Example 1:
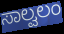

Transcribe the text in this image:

ಸಾಲ್ವಲಂ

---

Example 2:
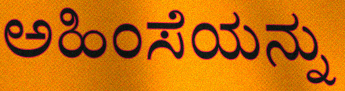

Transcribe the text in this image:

ಅಹಿಂಸೆಯನ್ನು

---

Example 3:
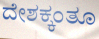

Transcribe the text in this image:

ದೇಶಕ್ಕಂತೂ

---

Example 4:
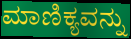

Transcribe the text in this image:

ಮಾಣಿಕ್ಯವನ್ನು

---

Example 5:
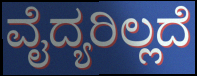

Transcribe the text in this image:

ವೈದ್ಯರಿಲ್ಲದೆ